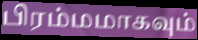
பிரம்மமாகவும்